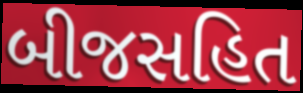
બીજસહિત